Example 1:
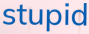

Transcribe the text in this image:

stupid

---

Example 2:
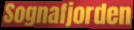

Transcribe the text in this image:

Sognafjorden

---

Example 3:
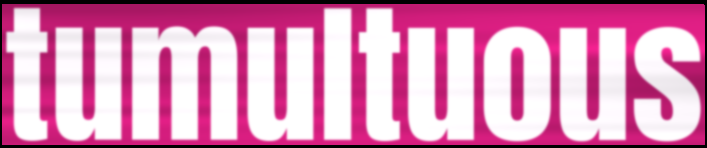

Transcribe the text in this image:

tumultuous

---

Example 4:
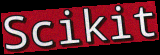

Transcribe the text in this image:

Scikit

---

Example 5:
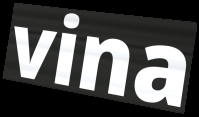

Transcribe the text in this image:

vina